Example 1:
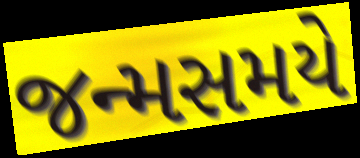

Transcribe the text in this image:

જન્મસમયે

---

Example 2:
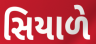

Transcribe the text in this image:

સિયાળે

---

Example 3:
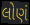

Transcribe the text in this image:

લોણં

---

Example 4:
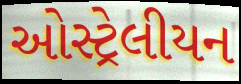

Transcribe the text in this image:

ઓસ્ટ્રેલીયન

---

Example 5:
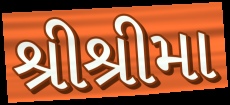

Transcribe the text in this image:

શ્રીશ્રીમા